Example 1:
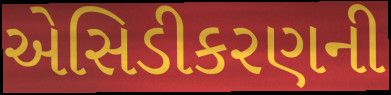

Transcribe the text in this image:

એસિડીકરણની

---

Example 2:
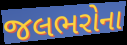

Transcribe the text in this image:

જલભરોના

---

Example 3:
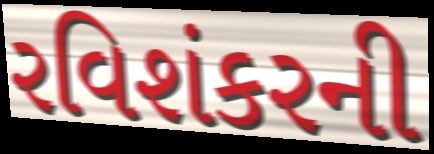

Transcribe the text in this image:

રવિશંકરની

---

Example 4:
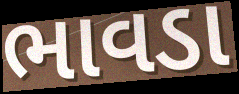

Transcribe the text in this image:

ભાવડા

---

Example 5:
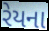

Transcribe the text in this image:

રેયના